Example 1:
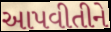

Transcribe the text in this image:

આપવીતીને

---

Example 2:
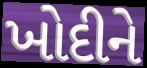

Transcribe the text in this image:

ખોદીને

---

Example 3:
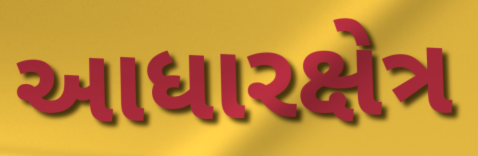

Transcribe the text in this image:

આધારક્ષેત્ર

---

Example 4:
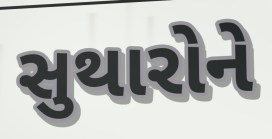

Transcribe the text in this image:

સુથારોને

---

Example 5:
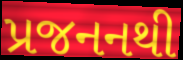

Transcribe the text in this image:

પ્રજનનથી